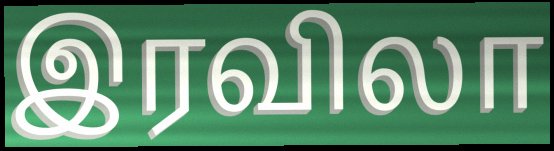
இரவிலா